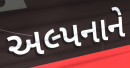
અલ્પનાને